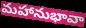
మహానుభావా